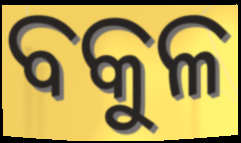
ବକୁଳ